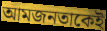
আমজনতাকেই